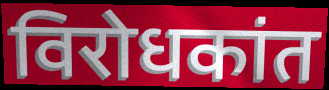
विरोधकांत